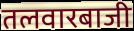
तलवारबाजी